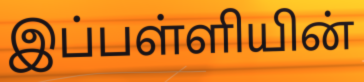
இப்பள்ளியின்